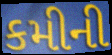
કમીની